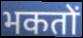
भकतों